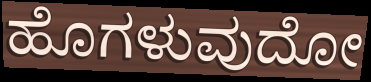
ಹೊಗಳುವುದೋ